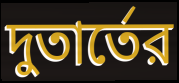
দুতার্তের